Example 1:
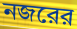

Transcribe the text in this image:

নজরের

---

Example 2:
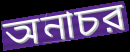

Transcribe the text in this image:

অনাচর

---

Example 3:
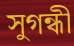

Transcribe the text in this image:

সুগন্ধী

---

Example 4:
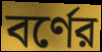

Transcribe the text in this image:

বর্ণের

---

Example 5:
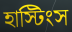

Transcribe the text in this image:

হাস্টিংস